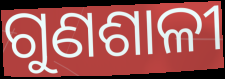
ଗୁଣଶାଳୀ